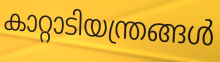
കാറ്റാടിയന്ത്രങ്ങൾ